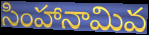
సింహానామివ